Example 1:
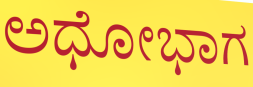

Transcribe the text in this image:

ಅಧೋಭಾಗ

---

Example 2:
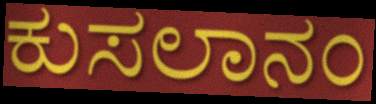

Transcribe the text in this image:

ಕುಸಲಾನಂ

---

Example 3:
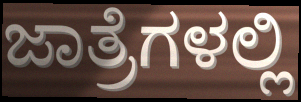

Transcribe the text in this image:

ಜಾತ್ರೆಗಳಲ್ಲಿ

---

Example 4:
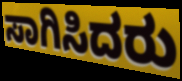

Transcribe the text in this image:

ಸಾಗಿಸಿದರು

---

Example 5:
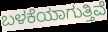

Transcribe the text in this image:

ಬಳಕೆಯಾಗುತ್ತಿವೆ